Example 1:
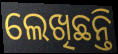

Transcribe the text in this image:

ଲେଖିଛନ୍ତି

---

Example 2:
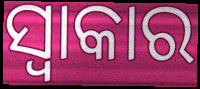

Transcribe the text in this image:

ସ୍ୱାକାର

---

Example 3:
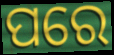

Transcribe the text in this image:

ପରେ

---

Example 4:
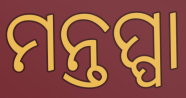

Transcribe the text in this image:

ମନ୍ତପ୍ପା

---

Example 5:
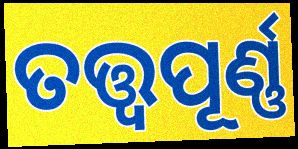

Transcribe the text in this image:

ତତ୍ତ୍ୱପୂର୍ଣ୍ଣ